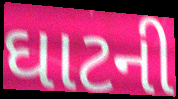
ઘાટની